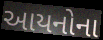
આયનોના